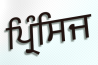
ਪ੍ਰਿੰਸਿਜ